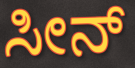
ಸೀನ್